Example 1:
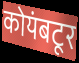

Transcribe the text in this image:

कोयंबटूर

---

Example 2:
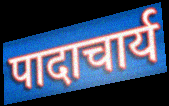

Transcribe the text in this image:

पादाचार्य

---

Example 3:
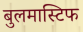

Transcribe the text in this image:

बुलमास्टिफ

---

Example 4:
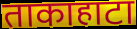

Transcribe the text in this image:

ताकाहाटा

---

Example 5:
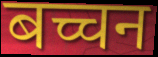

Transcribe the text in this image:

बच्‍चन